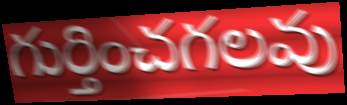
గుర్తించగలవు